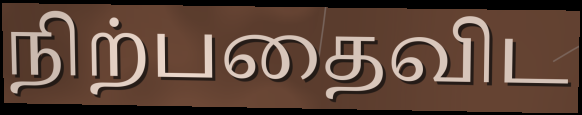
நிற்பதைவிட